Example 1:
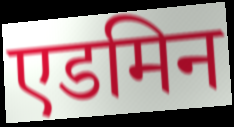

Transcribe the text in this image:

एडमिन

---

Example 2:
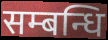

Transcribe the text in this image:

सम्बन्धि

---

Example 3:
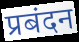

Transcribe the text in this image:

प्रबंदन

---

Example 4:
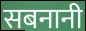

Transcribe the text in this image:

सबनानी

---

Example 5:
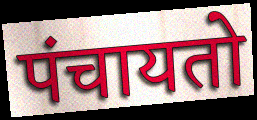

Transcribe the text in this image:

पंचायतो